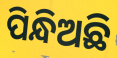
ପିନ୍ଧିଅଛି